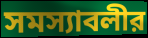
সমস্যাবলীর